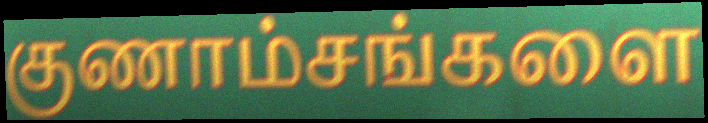
குணாம்சங்களை